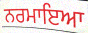
ਨਰਮਾਇਆ